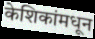
केशिकांमधून